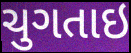
ચુગતાઇ